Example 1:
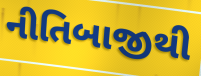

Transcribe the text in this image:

નીતિબાજીથી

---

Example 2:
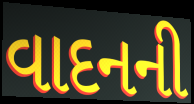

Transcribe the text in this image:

વાદનની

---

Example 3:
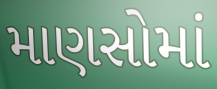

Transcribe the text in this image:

માણસોમાં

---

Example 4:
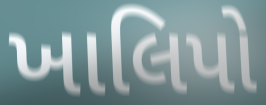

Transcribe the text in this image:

ખાલિપો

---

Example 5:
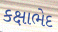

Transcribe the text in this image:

કક્ષાભેદ